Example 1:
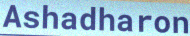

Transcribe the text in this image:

Ashadharon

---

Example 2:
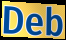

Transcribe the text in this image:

Deb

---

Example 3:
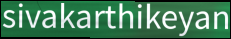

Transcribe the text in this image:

sivakarthikeyan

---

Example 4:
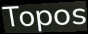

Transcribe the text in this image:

Topos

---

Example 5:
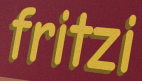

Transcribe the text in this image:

fritzi